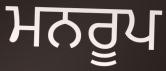
ਮਨਰੂਪ